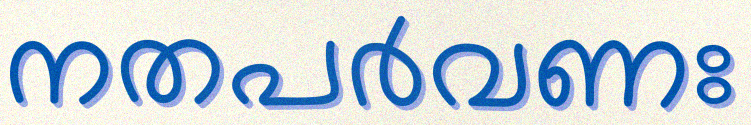
നതപർവണഃ